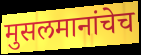
मुसलमानांचेच